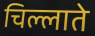
चिल्लाते